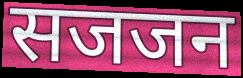
सजजन